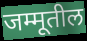
जम्मूतील